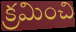
క్రమించి